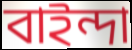
বাইন্দা